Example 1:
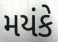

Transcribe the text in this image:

મયંકે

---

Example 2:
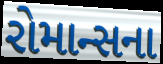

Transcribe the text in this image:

રોમાન્સના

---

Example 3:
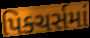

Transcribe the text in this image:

પિક્ચર્સમાં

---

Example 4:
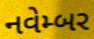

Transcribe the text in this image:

નવેમ્બર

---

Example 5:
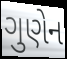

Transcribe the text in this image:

ગુણેન